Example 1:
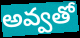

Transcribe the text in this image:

అవ్వతో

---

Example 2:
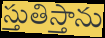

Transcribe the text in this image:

స్తుతిస్తాను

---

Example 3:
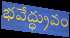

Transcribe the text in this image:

భవేద్ధ్రువం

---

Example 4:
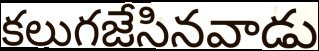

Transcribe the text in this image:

కలుగజేసినవాడు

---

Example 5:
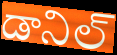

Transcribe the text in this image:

డానిల్